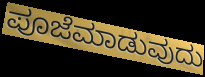
ಪೂಜೆಮಾಡುವುದು